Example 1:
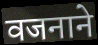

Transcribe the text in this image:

वजनाने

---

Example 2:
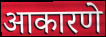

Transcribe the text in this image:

आकारणे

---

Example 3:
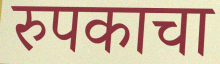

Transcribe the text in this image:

रुपकाचा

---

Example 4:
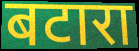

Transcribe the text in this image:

बटारा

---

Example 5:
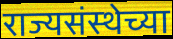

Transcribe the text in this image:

राज्यसंस्थेच्या